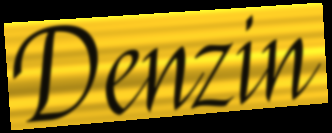
Denzin